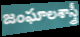
జంఘాలశాస్త్రీ